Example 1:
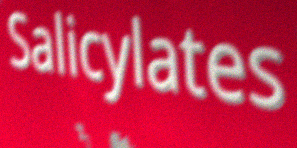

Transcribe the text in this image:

Salicylates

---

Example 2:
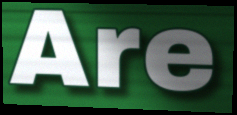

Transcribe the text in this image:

Are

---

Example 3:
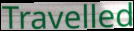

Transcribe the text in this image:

Travelled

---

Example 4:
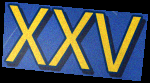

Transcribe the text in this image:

XXV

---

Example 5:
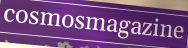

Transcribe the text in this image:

cosmosmagazine